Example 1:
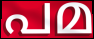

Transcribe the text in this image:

പമ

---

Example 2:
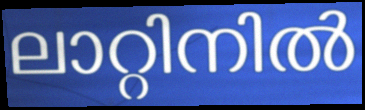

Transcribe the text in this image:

ലാറ്റിനിൽ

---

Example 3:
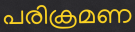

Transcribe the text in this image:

പരിക്രമണ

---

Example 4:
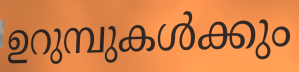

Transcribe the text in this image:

ഉറുമ്പുകൾക്കും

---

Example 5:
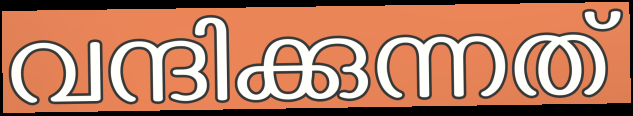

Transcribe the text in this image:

വന്ദിക്കുന്നത്